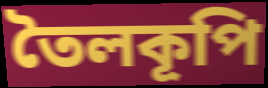
তৈলকূপি